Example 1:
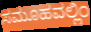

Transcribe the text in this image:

ಸಮೂಹವಲ್ಲಿಂ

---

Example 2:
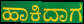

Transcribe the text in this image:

ಹಾಕಿದಾಗ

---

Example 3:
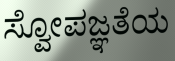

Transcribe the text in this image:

ಸ್ವೋಪಜ್ಞತೆಯ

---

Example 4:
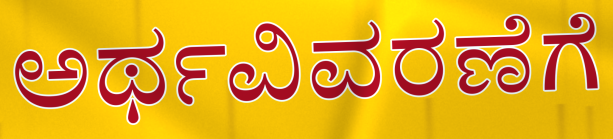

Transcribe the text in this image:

ಅರ್ಥವಿವರಣೆಗೆ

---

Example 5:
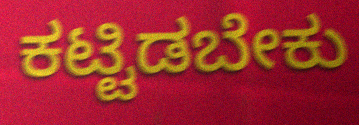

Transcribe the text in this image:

ಕಟ್ಟಿಡಬೇಕು